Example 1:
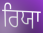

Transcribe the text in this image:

ਰਿਯਾ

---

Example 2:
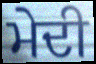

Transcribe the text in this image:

ਮੇਦੀ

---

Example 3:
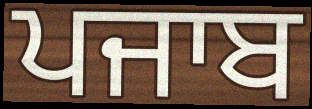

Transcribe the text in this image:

ਪਜਾਬ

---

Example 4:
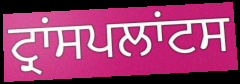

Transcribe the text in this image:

ਟ੍ਰਾਂਸਪਲਾਂਟਸ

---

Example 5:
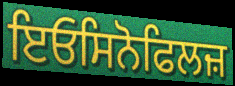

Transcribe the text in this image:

ਇਓਸਿਨੋਫਿਲਜ਼